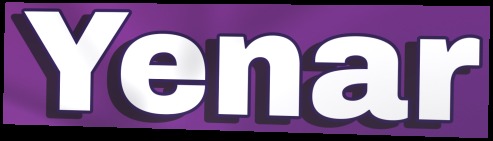
Yenar